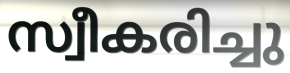
സ്വീകരിച്ചു